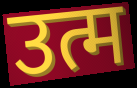
उत्म